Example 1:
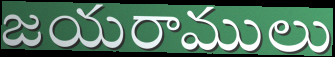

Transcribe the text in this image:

జయరాములు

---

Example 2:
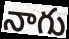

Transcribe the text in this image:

నాగు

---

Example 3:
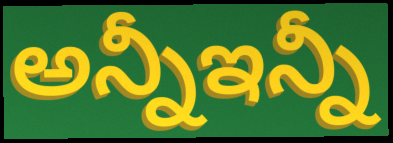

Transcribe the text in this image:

అన్నీఇన్నీ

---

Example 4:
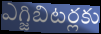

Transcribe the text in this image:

ఎగ్జిబిటర్లకు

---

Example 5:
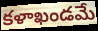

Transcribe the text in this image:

కళాఖండమే